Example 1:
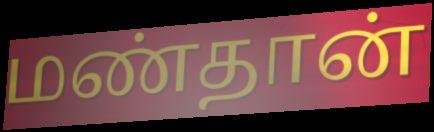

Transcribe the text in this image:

மண்தான்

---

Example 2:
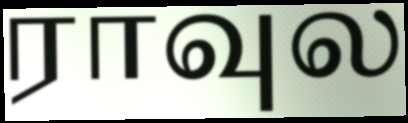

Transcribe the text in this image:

ராவுல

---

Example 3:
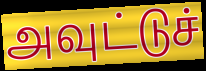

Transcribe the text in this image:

அவுட்டுச்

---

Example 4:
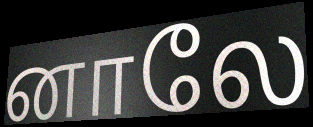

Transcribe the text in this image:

னாலே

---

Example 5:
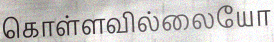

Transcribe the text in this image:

கொள்ளவில்லையோ